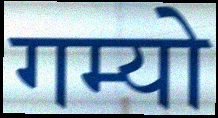
गम्यो